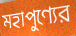
মহাপুণ্যের